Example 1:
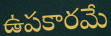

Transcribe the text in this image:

ఉపకారమే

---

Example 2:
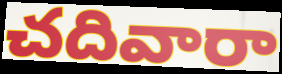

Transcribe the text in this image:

చదివారా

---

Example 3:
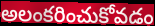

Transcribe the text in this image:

అలంకరించుకోవడం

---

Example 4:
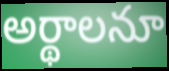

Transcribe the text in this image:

అర్థాలనూ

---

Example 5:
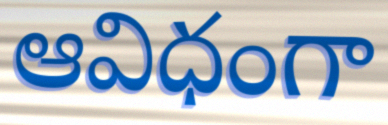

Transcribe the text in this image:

ఆవిధంగా